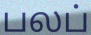
பலப்